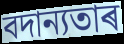
বদান্যতাৰ